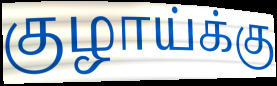
குழாய்க்கு